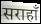
सराहाँ